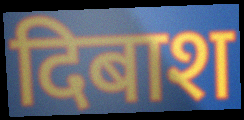
दिबाश